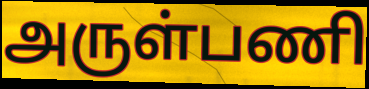
அருள்பணி